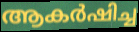
ആകർഷിച്ച